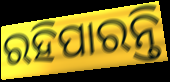
ରହିପାରନ୍ତି